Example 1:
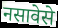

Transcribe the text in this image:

नसावेसे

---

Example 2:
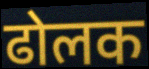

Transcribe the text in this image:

ढोलक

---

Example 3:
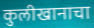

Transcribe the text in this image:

कुलीखानाचा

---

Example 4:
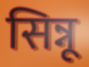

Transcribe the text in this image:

सिन्नू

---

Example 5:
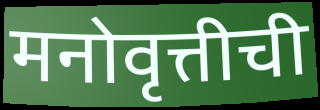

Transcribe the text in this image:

मनोवृत्तीची